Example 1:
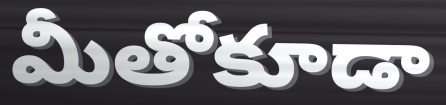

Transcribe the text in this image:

మీతోకూడా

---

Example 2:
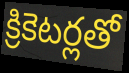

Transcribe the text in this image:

క్రికెటర్లతో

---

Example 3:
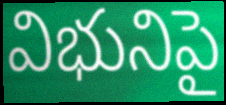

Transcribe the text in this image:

విభునిపై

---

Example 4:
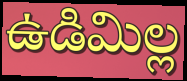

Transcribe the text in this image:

ఉడిమిల్ల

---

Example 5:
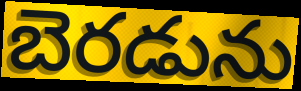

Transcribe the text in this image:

బెరడును